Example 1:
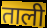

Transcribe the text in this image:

ताली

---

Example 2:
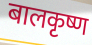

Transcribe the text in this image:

बालकृष्ण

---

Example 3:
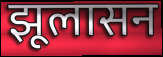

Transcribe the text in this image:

झूलासन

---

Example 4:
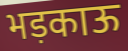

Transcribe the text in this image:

भड़काऊ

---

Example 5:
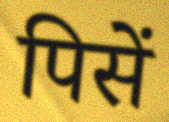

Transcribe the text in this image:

पिसें